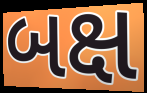
બક્ષ